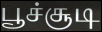
பூச்சூடி